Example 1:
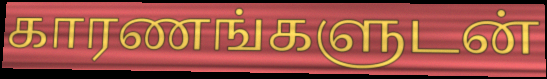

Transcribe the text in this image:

காரணங்களுடன்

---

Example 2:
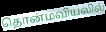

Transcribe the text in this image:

தொன்மவியலில்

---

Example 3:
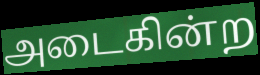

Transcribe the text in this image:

அடைகின்ற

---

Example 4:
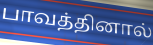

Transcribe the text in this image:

பாவத்தினால்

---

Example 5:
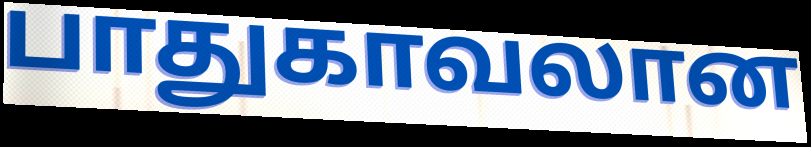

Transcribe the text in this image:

பாதுகாவலான